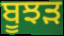
ਬੂਝੜ